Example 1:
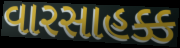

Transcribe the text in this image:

વારસાહક્ક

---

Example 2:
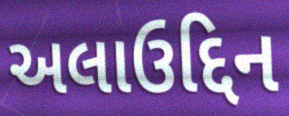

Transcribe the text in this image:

અલાઉદ્દિન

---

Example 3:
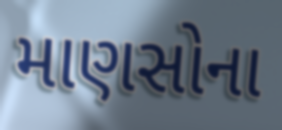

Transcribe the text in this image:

માણસોના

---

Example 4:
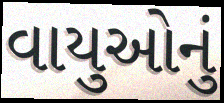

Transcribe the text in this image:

વાયુઓનું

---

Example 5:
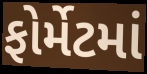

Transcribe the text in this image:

ફોર્મેટમાં